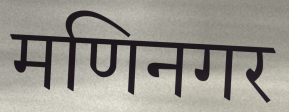
मणिनगर